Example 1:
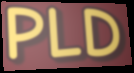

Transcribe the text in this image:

PLD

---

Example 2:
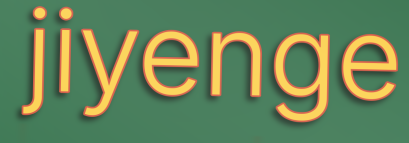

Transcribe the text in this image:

jiyenge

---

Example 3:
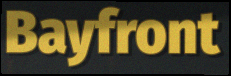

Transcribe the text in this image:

Bayfront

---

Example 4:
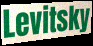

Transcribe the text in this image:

Levitsky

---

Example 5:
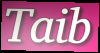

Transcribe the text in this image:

Taib